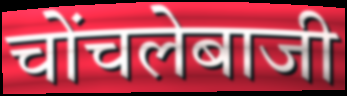
चोंचलेबाजी